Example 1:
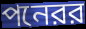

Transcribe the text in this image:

পনেরর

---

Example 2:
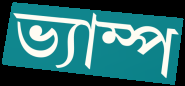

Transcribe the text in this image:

ভ্যাম্প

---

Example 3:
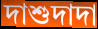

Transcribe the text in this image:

দাশুদাদা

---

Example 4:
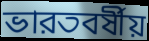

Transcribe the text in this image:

ভারতবর্ষীয়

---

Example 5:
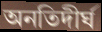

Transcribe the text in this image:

অনতিদীর্ঘ